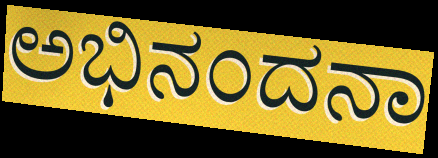
ಅಭಿನಂದನಾ